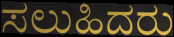
ಸಲುಹಿದರು